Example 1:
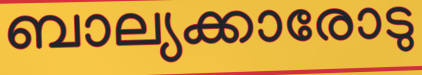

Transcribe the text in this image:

ബാല്യക്കാരോടു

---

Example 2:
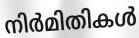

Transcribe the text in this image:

നിർമിതികൾ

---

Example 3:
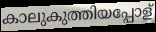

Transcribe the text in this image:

കാലുകുത്തിയപ്പോള്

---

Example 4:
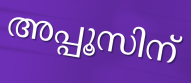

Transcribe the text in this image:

അപ്പൂസിന്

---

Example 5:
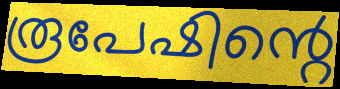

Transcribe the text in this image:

രൂപേഷിന്റെ